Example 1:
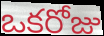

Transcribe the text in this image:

ఒకరోజు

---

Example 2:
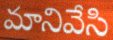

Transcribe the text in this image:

మానివేసి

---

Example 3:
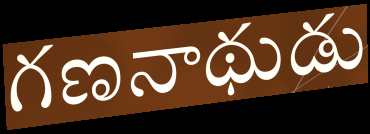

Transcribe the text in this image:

గణనాథుడు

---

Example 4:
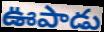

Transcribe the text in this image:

ఊపాడు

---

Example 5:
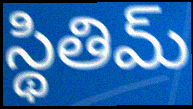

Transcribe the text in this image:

స్థితిమ్